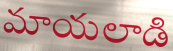
మాయలాడి